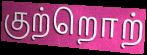
குற்றொற்